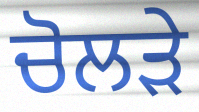
ਚੋਲੜੇ